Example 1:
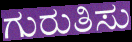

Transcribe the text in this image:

ಗುರುತಿಸು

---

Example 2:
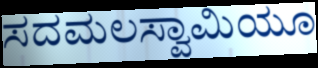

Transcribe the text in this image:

ಸದಮಲಸ್ವಾಮಿಯೂ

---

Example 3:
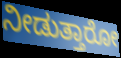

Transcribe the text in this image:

ನೀಡುತ್ತಾರೋ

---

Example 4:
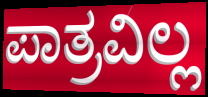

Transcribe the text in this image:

ಪಾತ್ರವಿಲ್ಲ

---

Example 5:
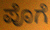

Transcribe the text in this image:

ಪೊಗೆ